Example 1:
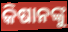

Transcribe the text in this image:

କିଷାନଙ୍କୁ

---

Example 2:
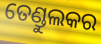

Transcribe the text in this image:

ତେଣ୍ଡୁଲକର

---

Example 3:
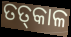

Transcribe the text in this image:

ତତ୍‌କାଳ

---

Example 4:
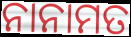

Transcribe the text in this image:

ନାନାମତ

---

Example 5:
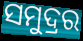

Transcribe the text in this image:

ସମୁଦ୍ରର